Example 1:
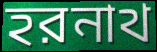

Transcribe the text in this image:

হরনাথ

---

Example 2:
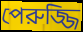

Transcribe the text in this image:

পেরুজ্জি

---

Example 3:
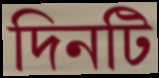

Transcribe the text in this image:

দিনটি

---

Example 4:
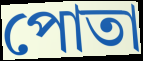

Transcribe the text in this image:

পোতা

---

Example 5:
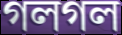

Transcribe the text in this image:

গলগল